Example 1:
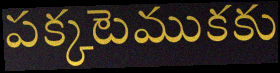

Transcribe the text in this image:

పక్కటెముకకు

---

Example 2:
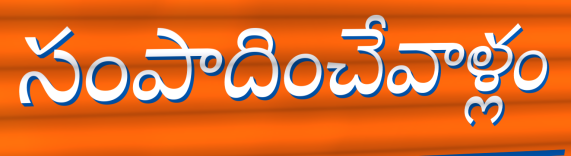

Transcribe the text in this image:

సంపాదించేవాళ్లం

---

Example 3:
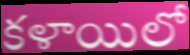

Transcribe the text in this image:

కళాయిలో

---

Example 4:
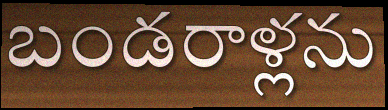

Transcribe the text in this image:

బండరాళ్లను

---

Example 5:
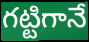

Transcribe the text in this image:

గట్టిగానే